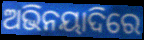
ଅଭିନୟାଦିରେ